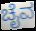
ಚೈವ